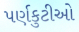
પર્ણકુટીઓ